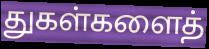
துகள்களைத்